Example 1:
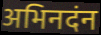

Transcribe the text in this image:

अभिनदंन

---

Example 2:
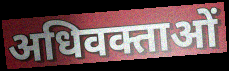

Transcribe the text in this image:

अधिवक्ताओं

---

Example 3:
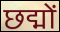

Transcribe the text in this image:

छद्मों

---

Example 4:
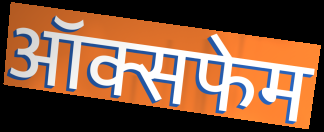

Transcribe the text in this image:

ऑक्सफेम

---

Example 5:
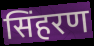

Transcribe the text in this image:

सिंहरण